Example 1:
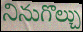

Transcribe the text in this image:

నినుగొల్చు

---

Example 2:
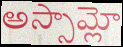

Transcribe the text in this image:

అస్సామ్లో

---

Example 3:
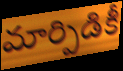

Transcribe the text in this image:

మార్పిడికీ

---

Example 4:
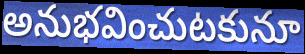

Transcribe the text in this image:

అనుభవించుటకునూ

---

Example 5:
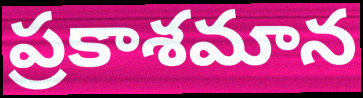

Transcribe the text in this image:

ప్రకాశమాన